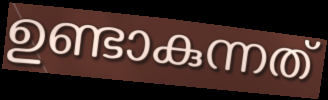
ഉണ്ടാകുന്നത്